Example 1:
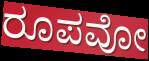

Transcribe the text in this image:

ರೂಪವೋ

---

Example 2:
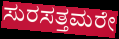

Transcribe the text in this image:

ಸುರಸತ್ತಮರೇ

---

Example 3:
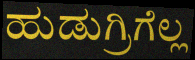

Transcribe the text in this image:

ಹುಡುಗ್ರಿಗೆಲ್ಲ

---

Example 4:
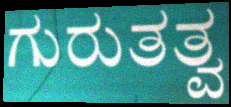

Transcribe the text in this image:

ಗುರುತತ್ವ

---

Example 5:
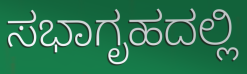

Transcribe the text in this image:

ಸಭಾಗೃಹದಲ್ಲಿ